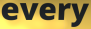
every